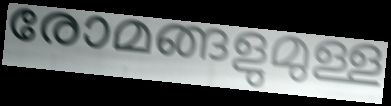
രോമങ്ങളുമുള്ള